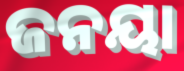
ଜନୟା